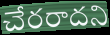
చేరరాదని